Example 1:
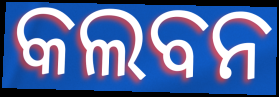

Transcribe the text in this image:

କଲବନ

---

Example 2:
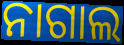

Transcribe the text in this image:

ନାଗାଲ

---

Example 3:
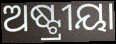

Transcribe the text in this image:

ଅଷ୍ଟ୍ରୀୟା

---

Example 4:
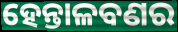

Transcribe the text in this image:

ହେନ୍ତାଳବଣର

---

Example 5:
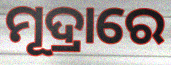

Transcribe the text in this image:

ମୂଦ୍ରାରେ